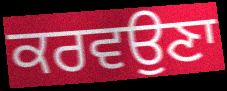
ਕਰਵਉਣਾ